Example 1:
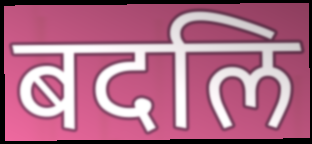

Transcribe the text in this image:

बदलि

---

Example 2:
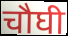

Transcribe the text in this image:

चौघी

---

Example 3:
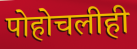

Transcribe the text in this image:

पोहोचलीही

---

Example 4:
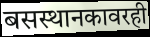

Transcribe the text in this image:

बसस्थानकावरही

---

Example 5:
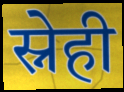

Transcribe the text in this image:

स्नेही